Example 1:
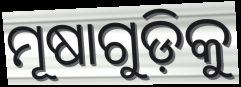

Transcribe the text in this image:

ମୂଷାଗୁଡ଼ିକୁ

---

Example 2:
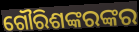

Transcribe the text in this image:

ଗୌରିଶଙ୍କରଙ୍କର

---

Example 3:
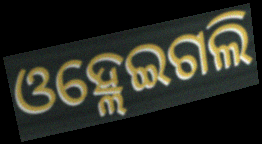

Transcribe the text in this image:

ଓହ୍ଲେଇଗଲି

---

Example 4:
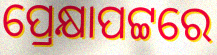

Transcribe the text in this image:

ପ୍ରେକ୍ଷାପଟ୍ଟରେ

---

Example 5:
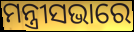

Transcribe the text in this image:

ମନ୍ତ୍ରୀସଭାରେ